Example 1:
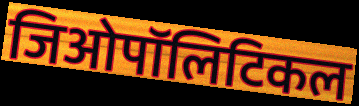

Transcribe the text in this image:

जिओपॉलिटिकल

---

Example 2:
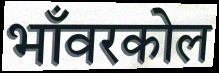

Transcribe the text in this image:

भाँवरकोल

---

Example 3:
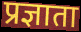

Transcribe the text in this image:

प्रज्ञाता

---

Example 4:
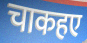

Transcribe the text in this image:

चाकहए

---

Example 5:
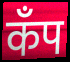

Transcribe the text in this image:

कॅंप